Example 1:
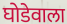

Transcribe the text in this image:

घोडेवाला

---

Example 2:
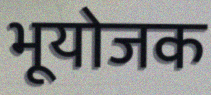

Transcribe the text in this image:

भूयोजक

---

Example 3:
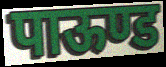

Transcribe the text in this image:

पाऊण्ड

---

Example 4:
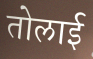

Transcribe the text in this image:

तोलाई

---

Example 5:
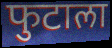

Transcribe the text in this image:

फुटाला